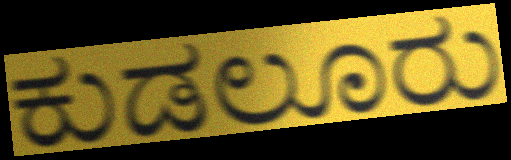
ಕುಡಲೂರು